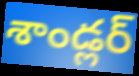
శాండ్లర్